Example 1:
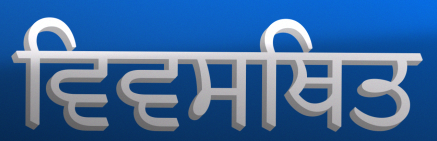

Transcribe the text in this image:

ਵਿਵਸਥਿਤ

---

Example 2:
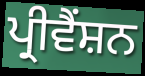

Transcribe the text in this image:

ਪ੍ਰੀਵੈਂਸ਼ਨ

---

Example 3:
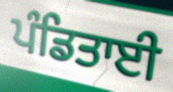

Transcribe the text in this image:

ਪੰਡਿਤਾਈ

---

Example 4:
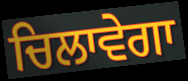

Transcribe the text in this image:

ਚਿਲਾਵੇਗਾ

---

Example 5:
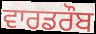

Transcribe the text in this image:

ਵਾਰਡਰੌਬ